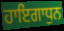
ਹਾਇਗਾਧੁਨ